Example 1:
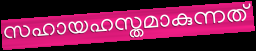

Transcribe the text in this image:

സഹായഹസ്തമാകുന്നത്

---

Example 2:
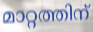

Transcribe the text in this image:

മാറ്റത്തിന്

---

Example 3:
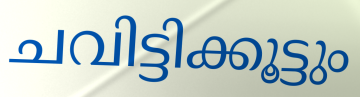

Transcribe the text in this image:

ചവിട്ടിക്കൂട്ടും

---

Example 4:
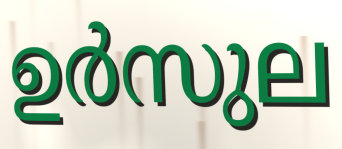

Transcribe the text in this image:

ഉർസുല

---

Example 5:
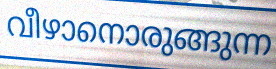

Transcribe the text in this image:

വീഴാനൊരുങ്ങുന്ന